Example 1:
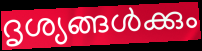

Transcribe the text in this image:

ദൃശ്യങ്ങൾക്കും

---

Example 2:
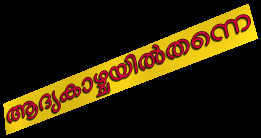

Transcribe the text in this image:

ആദ്യകാഴ്ചയിൽതന്നെ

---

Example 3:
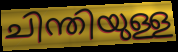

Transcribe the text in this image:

ചിന്തിയുള്ള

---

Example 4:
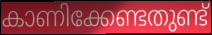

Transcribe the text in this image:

കാണിക്കേണ്ടതുണ്ട്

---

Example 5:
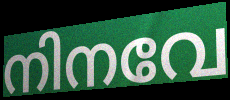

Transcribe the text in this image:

നിനവേ